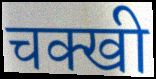
चक्खी